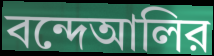
বন্দেআলির